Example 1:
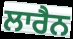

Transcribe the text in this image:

ਲਾਰੈਨ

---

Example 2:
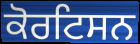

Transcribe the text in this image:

ਕੋਰਟਿਸਨ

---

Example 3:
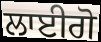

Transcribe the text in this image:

ਲਾਈਗੋ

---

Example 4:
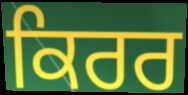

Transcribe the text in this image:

ਕਿਰਰ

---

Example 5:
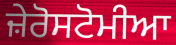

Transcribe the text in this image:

ਜ਼ੇਰੋਸਟੋਮੀਆ